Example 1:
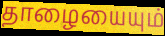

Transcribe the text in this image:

தாழையையும்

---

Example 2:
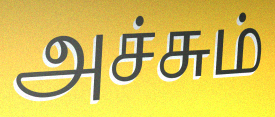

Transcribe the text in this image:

அச்சும்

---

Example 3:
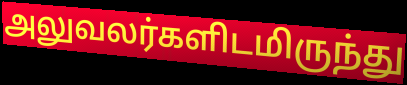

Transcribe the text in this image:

அலுவலர்களிடமிருந்து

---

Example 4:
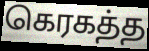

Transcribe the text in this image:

கெரகத்த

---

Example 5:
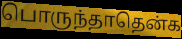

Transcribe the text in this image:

பொருந்தாதென்க